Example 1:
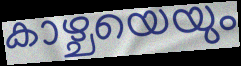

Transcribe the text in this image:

കാഴ്ചയെയും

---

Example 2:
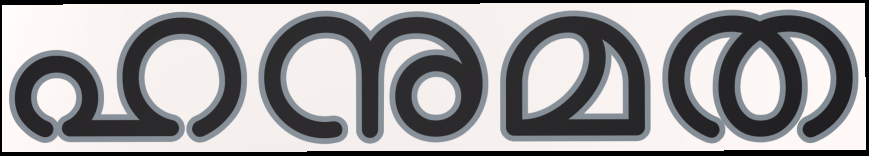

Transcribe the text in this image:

ഹനുമത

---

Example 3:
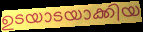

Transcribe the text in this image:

ഉടയാടയാക്കിയ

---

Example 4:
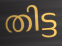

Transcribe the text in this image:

തിട്ട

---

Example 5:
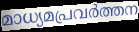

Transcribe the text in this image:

മാധ്യമപ്രവർത്തന